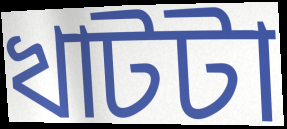
খাটটা